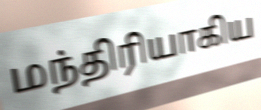
மந்திரியாகிய